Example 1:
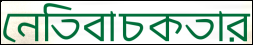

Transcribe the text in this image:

নেতিবাচকতার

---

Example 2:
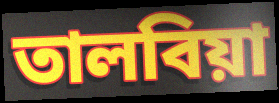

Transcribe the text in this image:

তালবিয়া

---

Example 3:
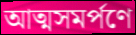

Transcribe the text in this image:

আত্মসমর্পণে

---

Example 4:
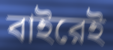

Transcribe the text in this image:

বাইরেই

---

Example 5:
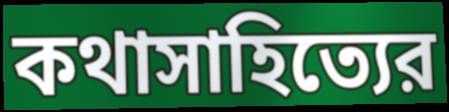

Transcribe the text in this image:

কথাসাহিত্যের